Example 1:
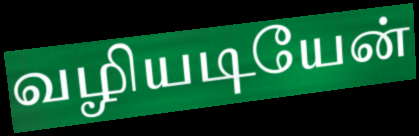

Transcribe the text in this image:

வழியடியேன்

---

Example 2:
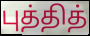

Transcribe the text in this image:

புத்தித்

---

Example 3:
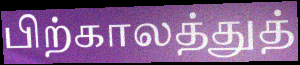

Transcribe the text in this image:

பிற்காலத்துத்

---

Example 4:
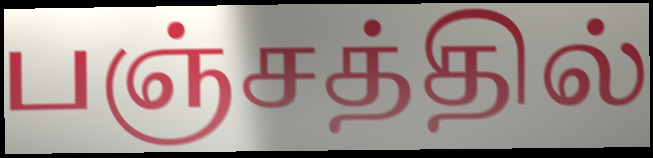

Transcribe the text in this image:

பஞ்சத்தில்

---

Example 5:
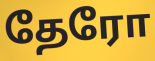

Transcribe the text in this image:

தேரோ